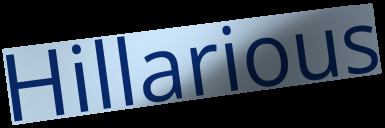
Hillarious